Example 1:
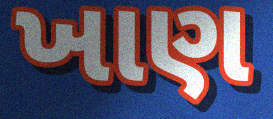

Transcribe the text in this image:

ખાણ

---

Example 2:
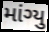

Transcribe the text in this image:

માંગ્યુ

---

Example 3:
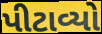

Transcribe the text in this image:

પીટાવ્યો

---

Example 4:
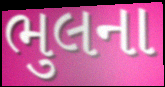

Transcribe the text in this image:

ભુલના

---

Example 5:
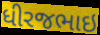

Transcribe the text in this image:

ધીરજભાઇ